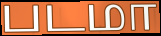
படமா